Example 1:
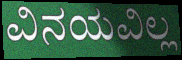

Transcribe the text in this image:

ವಿನಯವಿಲ್ಲ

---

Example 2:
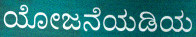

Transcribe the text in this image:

ಯೋಜನೆಯಡಿಯ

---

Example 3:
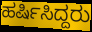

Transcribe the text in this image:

ಹರ್ಷಿಸಿದ್ದರು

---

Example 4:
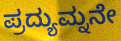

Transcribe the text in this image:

ಪ್ರದ್ಯುಮ್ನನೇ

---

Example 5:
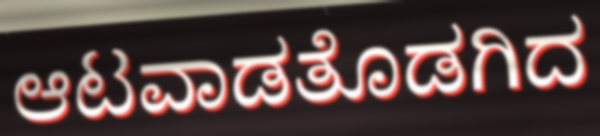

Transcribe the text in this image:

ಆಟವಾಡತೊಡಗಿದ